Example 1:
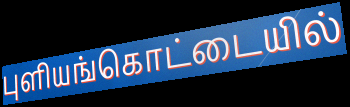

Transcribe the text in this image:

புளியங்கொட்டையில்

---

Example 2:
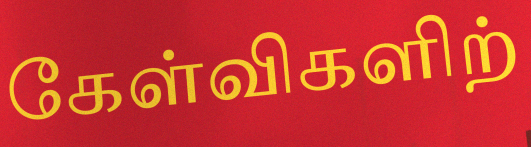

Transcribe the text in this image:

கேள்விகளிற்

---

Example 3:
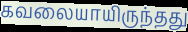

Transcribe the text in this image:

கவலையாயிருந்தது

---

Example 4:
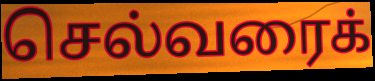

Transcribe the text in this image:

செல்வரைக்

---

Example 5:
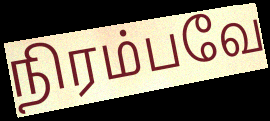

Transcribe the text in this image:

நிரம்பவே